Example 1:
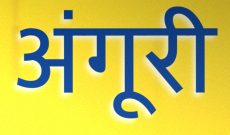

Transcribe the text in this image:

अंगूरी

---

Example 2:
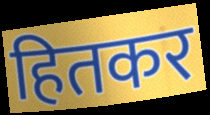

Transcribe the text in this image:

हितकर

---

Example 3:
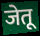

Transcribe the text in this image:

जेतू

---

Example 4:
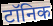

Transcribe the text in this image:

टॉनिक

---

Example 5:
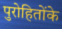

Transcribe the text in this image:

पुरोहितोंके